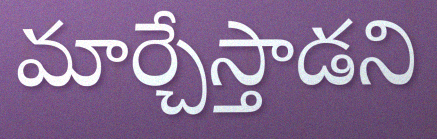
మార్చేస్తాడని